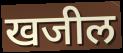
खजील